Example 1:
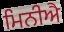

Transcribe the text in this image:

ਮਿਨੀਐ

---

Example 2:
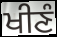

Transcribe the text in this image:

ਖੀਣੰ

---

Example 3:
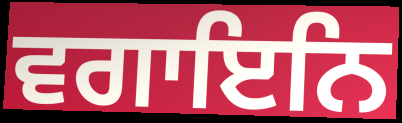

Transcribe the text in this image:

ਵਗਾਇਨਿ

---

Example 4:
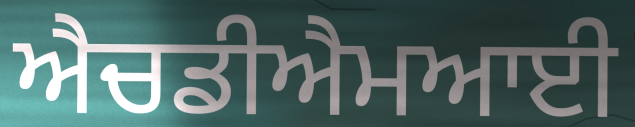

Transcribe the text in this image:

ਐਚਡੀਐਮਆਈ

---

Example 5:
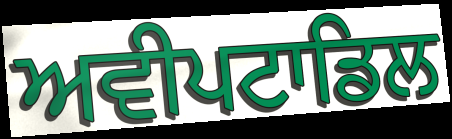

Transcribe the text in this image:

ਅਵੀਪਟਾਡਿਲ